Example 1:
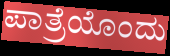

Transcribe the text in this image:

ಪಾತ್ರೆಯೊಂದು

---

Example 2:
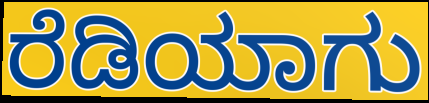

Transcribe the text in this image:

ರೆಡಿಯಾಗು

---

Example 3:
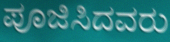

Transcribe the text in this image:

ಪೂಜಿಸಿದವರು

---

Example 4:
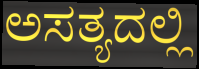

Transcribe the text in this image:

ಅಸತ್ಯದಲ್ಲಿ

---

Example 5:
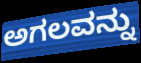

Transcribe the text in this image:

ಅಗಲವನ್ನು